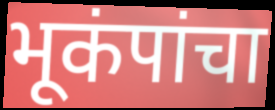
भूकंपांचा